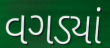
વગડ્યાં